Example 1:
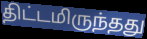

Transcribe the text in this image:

திட்டமிருந்தது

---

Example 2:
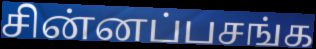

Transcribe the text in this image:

சின்னப்பசங்க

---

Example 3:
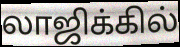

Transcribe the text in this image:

லாஜிக்கில்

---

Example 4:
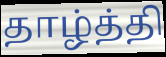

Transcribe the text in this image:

தாழ்த்தி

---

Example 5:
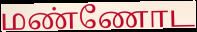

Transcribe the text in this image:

மண்ணோட